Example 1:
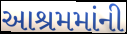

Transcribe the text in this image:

આશ્રમમાંની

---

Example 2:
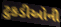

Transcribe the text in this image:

ટુકડીઓની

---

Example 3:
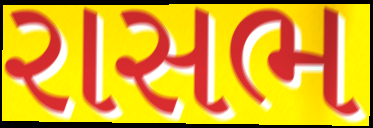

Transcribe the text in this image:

રાસભ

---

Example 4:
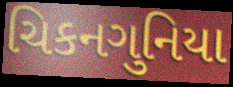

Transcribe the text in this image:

ચિકનગુનિયા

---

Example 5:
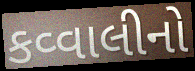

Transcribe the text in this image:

કવ્વાલીનો